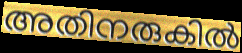
അതിനരുകിൽ